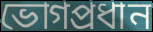
ভোগপ্রধান